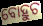
ବୋହୁଚ